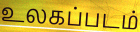
உலகப்படம்